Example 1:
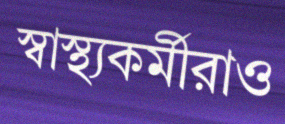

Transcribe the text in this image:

স্বাস্থ্যকর্মীরাও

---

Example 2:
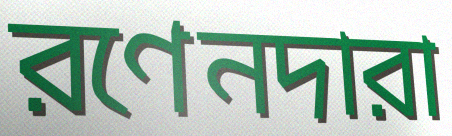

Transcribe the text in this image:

রণেনদারা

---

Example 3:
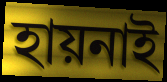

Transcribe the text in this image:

হায়নাই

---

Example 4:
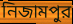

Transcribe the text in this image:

নিজামপুর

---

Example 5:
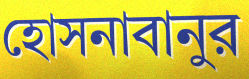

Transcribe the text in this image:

হোসনাবানুর